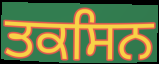
ਤਕਸਿਨ